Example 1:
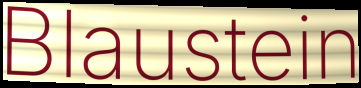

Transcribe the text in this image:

Blaustein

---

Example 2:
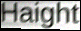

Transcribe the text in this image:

Haight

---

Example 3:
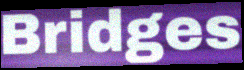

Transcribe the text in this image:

Bridges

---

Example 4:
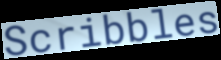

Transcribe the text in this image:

Scribbles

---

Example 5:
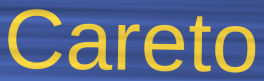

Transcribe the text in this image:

Careto